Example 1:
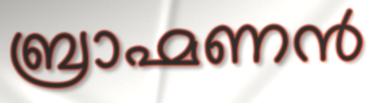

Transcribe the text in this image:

ബ്രാഹ്മണൻ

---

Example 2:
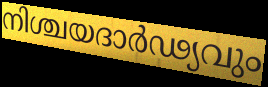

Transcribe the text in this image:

നിശ്ചയദാർഢ്യവും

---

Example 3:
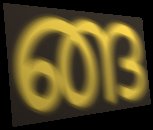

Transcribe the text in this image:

ങ്ങ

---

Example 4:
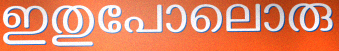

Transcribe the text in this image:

ഇതുപോലൊരു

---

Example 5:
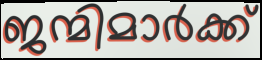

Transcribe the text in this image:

ജന്മിമാർക്ക്